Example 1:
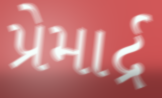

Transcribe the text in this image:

પ્રેમાર્દ્ર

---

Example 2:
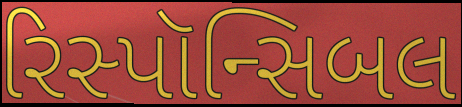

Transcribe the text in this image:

રિસ્પૉન્સિબલ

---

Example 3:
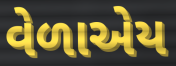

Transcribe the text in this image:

વેળાએય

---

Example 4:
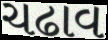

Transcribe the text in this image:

ચઢાવ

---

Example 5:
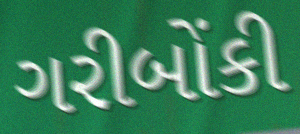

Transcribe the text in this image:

ગરીબોંકી